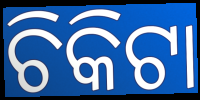
ଚିକିଟା